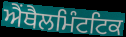
ਐਂਥੈਲਮਿੰਟਟਿਕ